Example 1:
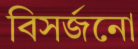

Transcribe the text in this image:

বিসৰ্জনো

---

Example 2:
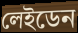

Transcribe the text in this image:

লেইডেন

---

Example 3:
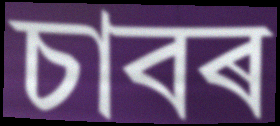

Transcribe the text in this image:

চাবৰ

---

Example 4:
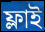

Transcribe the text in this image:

ফ্লাই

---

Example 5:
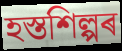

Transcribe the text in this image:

হস্তশিল্পৰ